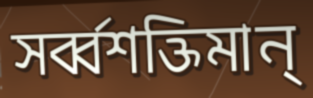
সর্ব্বশক্তিমান্